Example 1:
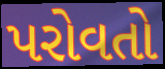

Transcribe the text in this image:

પરોવતો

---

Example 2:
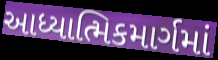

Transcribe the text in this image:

આધ્યાત્મિકમાર્ગમાં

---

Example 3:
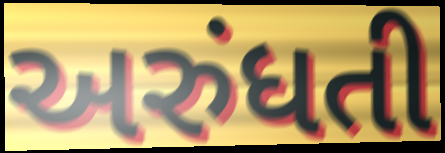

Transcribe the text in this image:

અરુંધતી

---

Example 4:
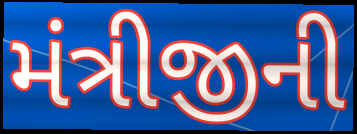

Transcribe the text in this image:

મંત્રીજીની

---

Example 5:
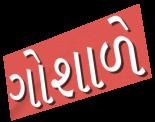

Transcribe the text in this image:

ગોશાળે